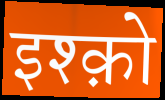
इश्क़ो